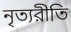
নৃত্যরীতি